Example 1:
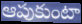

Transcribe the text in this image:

ఆపుకుంటా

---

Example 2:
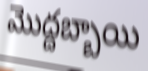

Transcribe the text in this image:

మొద్దబ్బాయి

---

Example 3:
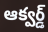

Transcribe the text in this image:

ఆక్వర్డ్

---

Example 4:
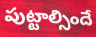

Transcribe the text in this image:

పుట్టాల్సిందే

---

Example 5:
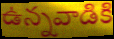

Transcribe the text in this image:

ఉన్నవాడికి